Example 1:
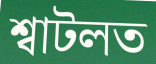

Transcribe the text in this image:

শ্বাটলত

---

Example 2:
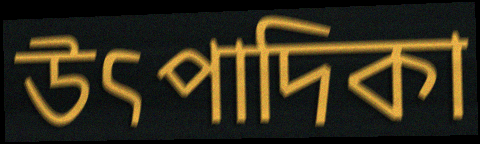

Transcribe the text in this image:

উৎপাদিকা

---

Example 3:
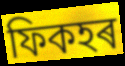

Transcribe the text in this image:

ফিকহৰ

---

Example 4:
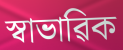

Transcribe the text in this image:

স্বাভাৱিক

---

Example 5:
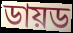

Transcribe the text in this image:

ডায়ড